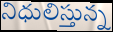
నిధులిస్తున్న